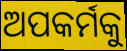
ଅପକର୍ମକୁ